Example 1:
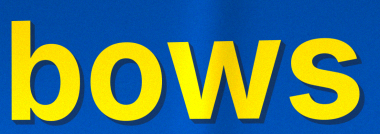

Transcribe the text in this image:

bows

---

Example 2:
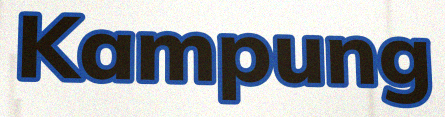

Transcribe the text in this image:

Kampung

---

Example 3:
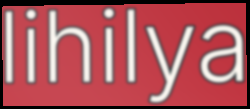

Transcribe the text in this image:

lihilya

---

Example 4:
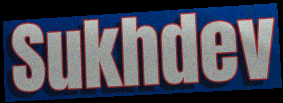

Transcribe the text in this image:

Sukhdev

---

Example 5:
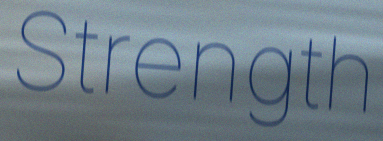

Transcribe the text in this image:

Strength